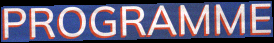
PROGRAMME